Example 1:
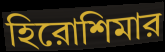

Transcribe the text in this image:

হিরোশিমার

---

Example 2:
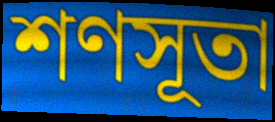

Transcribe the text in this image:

শণসূতা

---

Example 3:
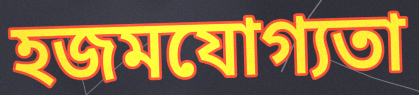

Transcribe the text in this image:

হজমযোগ্যতা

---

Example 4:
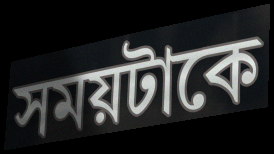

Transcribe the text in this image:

সময়টাকে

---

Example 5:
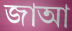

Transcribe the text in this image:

জাআ